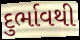
દુર્ભાવથી